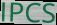
IPCS